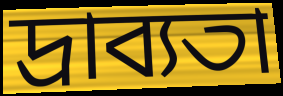
দ্রাব্যতা